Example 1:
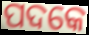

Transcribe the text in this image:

ପଦକେ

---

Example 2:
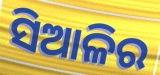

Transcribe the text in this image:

ସିଆଳିର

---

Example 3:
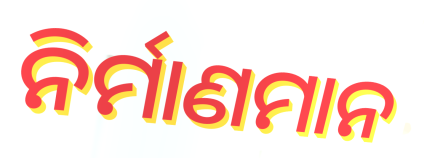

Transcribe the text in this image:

ନିର୍ମାଣମାନ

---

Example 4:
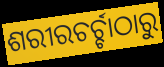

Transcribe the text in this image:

ଶରୀରଚର୍ଚ୍ଚାଠାରୁ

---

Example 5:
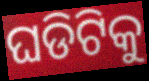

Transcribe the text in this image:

ଘଡିଟିକୁ